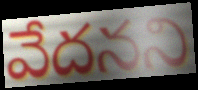
వేదనని